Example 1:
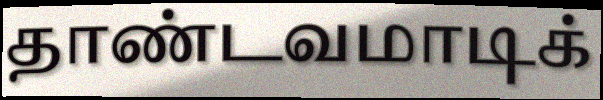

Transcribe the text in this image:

தாண்டவமாடிக்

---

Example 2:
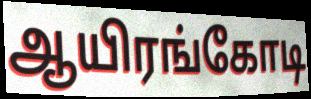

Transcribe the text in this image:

ஆயிரங்கோடி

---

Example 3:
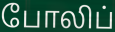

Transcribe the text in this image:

போலிப்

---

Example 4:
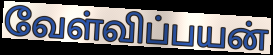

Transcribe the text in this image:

வேள்விப்பயன்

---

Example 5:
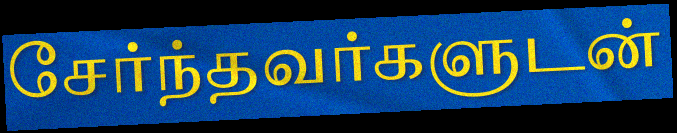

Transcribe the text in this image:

சேர்ந்தவர்களுடன்